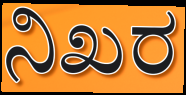
ನಿಖರ